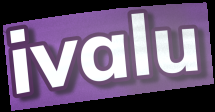
ivalu